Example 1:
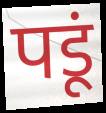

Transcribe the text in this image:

पडूं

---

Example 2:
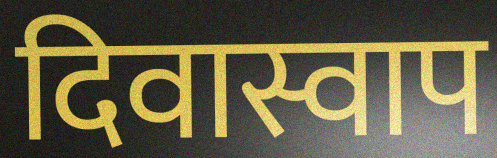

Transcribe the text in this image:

दिवास्वाप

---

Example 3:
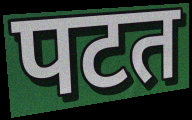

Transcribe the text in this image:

पटत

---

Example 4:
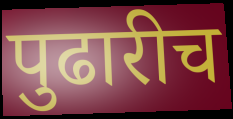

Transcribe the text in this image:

पुढारीच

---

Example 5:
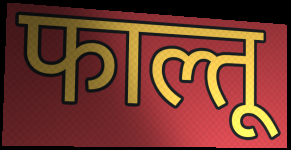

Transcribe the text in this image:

फाल्तू